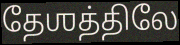
தேஶத்திலே